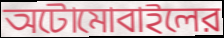
অটোমোবাইলের